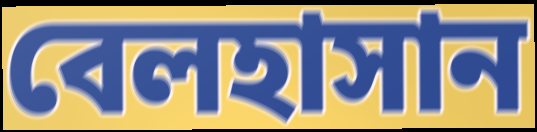
বেলহাসান